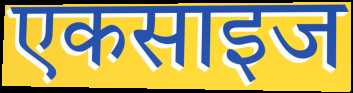
एकसाइज